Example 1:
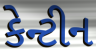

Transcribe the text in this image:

કેન્ટીન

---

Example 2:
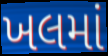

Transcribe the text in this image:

ખલમાં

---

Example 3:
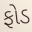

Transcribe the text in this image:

ફોડ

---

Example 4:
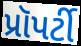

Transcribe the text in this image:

પ્રૉપર્ટી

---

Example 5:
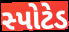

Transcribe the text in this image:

સ્પોટેડ